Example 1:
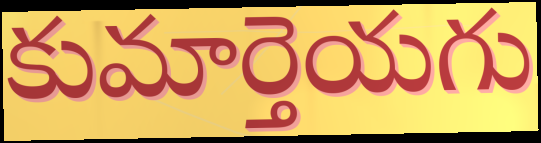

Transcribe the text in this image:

కుమార్తెయగు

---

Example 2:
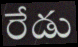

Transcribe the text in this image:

రేడు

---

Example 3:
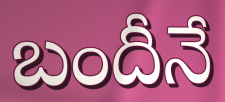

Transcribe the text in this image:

బందీనే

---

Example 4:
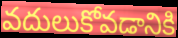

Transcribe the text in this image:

వదులుకోవడానికి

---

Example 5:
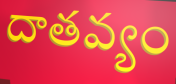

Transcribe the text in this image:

దాతవ్యం